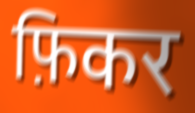
फ़िकर